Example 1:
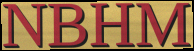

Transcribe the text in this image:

NBHM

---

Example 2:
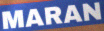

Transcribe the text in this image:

MARAN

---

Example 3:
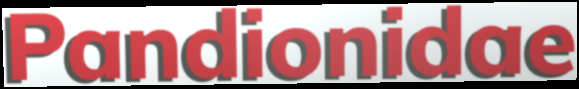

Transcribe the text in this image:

Pandionidae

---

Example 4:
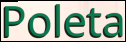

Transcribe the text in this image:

Poleta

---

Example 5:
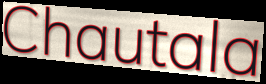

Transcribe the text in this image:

Chautala